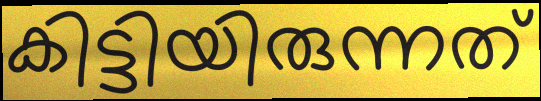
കിട്ടിയിരുന്നത്